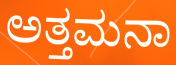
ಅತ್ತಮನಾ